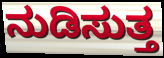
ನುಡಿಸುತ್ತ